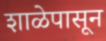
शाळेपासून